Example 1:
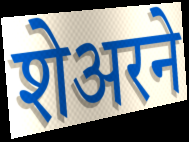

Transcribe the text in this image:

शेअरने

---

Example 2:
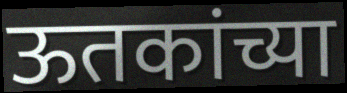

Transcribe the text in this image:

ऊतकांच्या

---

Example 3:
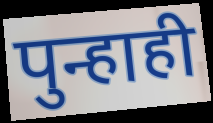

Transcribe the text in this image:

पुन्हाही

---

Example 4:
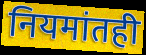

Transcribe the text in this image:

नियमांतही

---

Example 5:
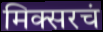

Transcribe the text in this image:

मिक्सरचं